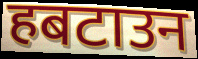
हबटाउन